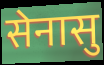
सेनासु